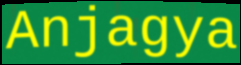
Anjagya